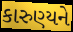
કારુણ્યને